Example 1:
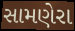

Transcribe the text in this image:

સામણેરા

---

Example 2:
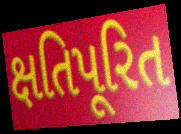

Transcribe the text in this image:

ક્ષતિપૂરિત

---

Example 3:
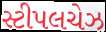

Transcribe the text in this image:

સ્ટીપલચેઝ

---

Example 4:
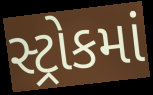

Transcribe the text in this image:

સ્ટ્રોકમાં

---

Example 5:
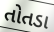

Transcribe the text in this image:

તોતડા